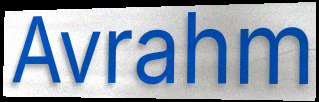
Avrahm